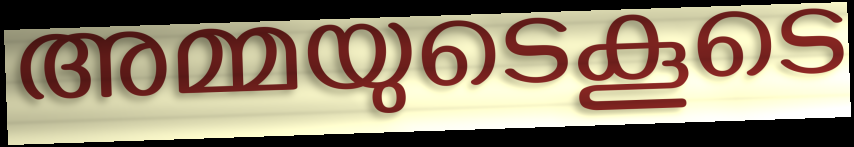
അമ്മയുടെകൂടെ